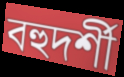
বহুদর্শী